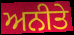
ਅਨੀਤੇ